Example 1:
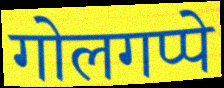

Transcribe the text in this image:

गोलगप्पे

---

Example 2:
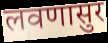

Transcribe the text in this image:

लवणासुर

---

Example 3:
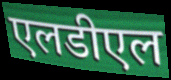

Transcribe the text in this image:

एलडीएल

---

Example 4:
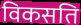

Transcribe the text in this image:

विकसति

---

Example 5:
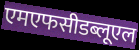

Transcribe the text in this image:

एमएफसीडब्‍लूएल